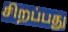
சிறப்பது